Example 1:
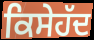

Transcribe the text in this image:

ਕਿਸੇਹੱਦ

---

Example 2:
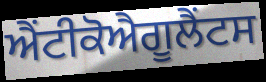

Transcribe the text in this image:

ਐਂਟੀਕੋਐਗੂਲੈਂਟਸ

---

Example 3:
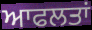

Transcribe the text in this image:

ਆਫਲਤਾਂ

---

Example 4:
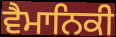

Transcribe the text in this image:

ਵੈਮਾਨਿਕੀ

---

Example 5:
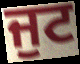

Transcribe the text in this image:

ਜੁਟ